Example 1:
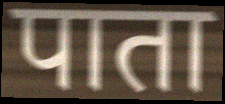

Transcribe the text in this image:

पाता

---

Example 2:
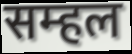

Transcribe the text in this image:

सम्हल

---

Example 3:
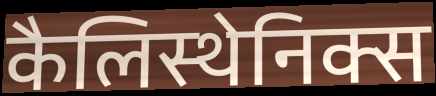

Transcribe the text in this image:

कैलिस्थेनिक्स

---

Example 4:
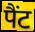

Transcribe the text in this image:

पैंट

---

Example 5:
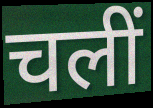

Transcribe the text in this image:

चलीं